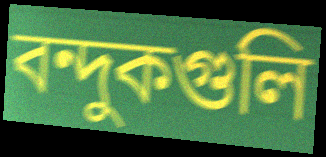
বন্দুকগুলি